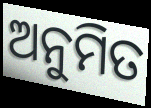
ଅନୁମିତ